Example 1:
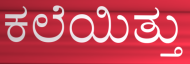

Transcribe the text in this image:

ಕಲೆಯಿತ್ತು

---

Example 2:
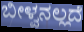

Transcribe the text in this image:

ಬೀಳ್ವನಲ್ಲದೆ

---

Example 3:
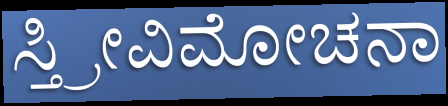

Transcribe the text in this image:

ಸ್ತ್ರೀವಿಮೋಚನಾ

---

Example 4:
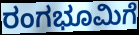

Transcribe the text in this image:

ರಂಗಭೂಮಿಗೆ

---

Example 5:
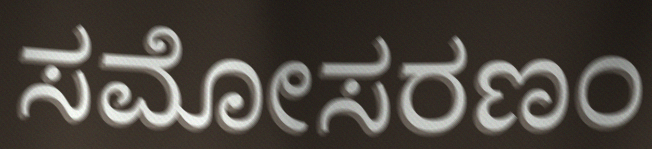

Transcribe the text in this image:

ಸಮೋಸರಣಂ